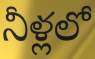
నీళ్లలో